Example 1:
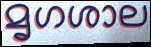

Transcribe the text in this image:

മൃഗശാല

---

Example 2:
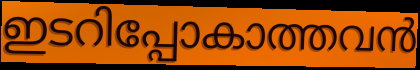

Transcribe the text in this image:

ഇടറിപ്പോകാത്തവൻ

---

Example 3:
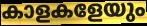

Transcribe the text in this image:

കാളകളേയും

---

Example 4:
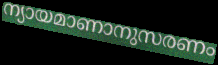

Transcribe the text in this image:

ന്യായമാണാനുസരണം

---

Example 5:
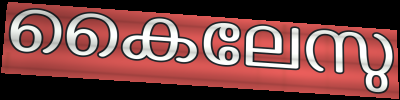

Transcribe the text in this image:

കൈലേസു